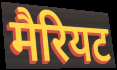
मैरियट